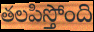
తలపిస్తోంది